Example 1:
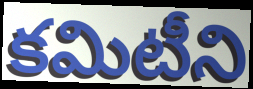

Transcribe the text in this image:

కమిటీని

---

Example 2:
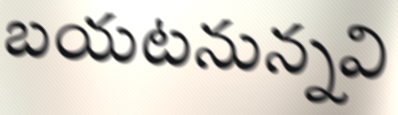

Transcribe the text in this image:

బయటనున్నవి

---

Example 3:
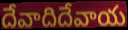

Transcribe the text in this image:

దేవాదిదేవాయ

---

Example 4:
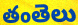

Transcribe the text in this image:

తంతెలు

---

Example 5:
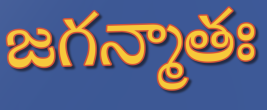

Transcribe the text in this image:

జగన్మాతః